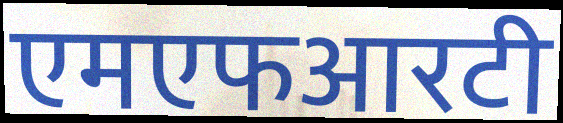
एमएफआरटी